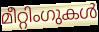
മീറ്റിംഗുകൾ